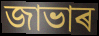
জাভাৰ